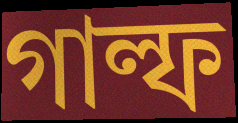
গাল্ফ